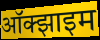
ऑक्झाइम